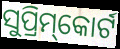
ସୁପ୍ରିମ୍‌କୋର୍ଟ